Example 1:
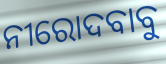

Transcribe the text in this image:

ନୀରୋଦବାବୁ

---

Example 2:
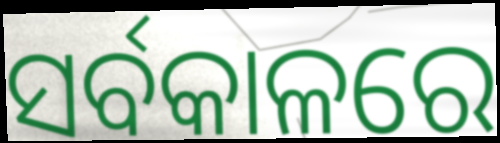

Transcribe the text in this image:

ସର୍ବକାଳରେ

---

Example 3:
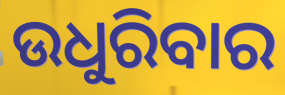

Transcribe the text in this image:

ଉଧୁରିବାର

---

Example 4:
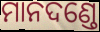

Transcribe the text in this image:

ମାନଦଣ୍ଡେ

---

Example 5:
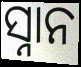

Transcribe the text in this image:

ସ୍ନାନ